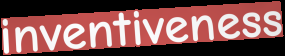
inventiveness